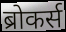
ब्रोकर्स